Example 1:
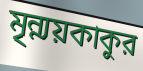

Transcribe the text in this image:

মৃন্ময়কাকুর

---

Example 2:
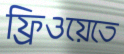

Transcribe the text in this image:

ফ্রিওয়েতে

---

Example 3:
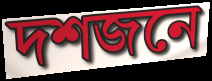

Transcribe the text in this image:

দশজনে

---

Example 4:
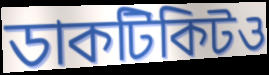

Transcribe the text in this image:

ডাকটিকিটও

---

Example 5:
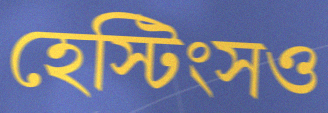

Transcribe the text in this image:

হেস্টিংসও